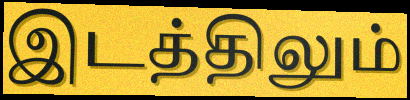
இடத்திலும்